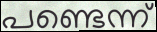
പണ്ടെന്ന്